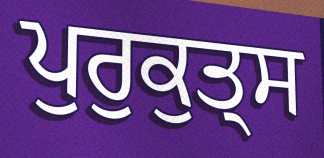
ਪੁਰੁਕੁਤ੍ਸ